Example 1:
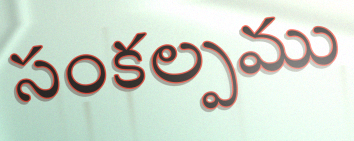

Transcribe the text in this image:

సంకల్పము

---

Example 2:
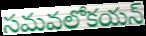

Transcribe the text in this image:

సమవలోకయన్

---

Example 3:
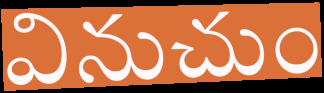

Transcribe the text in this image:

వినుచుం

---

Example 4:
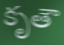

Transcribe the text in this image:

కృతౌ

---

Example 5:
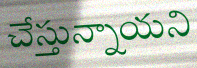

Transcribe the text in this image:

చేస్తున్నాయని